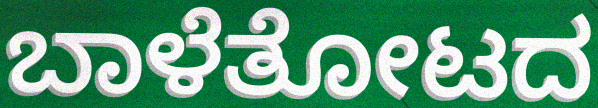
ಬಾಳೆತೋಟದ